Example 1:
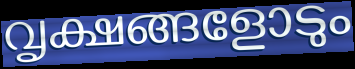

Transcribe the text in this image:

വൃക്ഷങ്ങളോടും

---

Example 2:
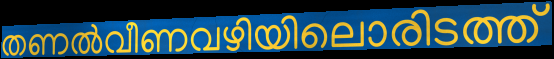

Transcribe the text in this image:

തണൽവീണവഴിയിലൊരിടത്ത്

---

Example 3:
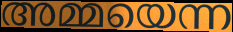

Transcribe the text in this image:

അമ്മയെന്ന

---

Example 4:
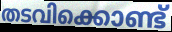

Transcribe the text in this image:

തടവിക്കൊണ്ട്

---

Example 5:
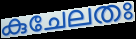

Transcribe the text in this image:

കുചേലതഃ